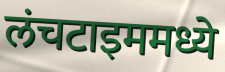
लंचटाइममध्ये